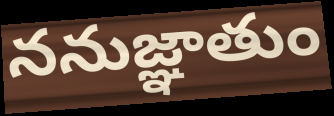
ననుజ్ఞాతుం